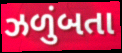
ઝળુંબતા